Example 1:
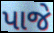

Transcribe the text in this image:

પાજે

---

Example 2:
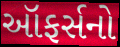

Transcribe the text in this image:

ઑફર્સનો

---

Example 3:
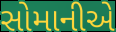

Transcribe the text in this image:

સોમાનીએ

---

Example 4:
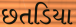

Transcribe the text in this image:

છતડિયા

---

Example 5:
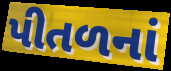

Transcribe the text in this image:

પીતળનાં